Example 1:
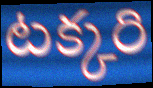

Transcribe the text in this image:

టక్కరి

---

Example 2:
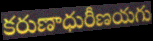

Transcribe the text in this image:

కరుణాధురీణయగు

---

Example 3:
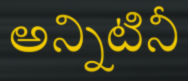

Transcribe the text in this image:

అన్నిటినీ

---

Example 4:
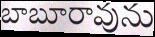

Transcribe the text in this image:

బాబూరావును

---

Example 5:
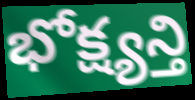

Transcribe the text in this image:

భోక్ష్యన్తి